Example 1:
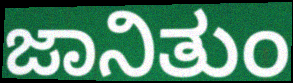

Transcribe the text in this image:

ಜಾನಿತುಂ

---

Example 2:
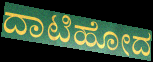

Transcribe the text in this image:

ದಾಟಿಹೋದ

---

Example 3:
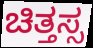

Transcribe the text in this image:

ಚಿತ್ತಸ್ಸ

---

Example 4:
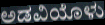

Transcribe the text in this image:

ಅಡವಿಯೊಳು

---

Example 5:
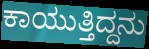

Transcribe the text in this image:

ಕಾಯುತ್ತಿದ್ದನು